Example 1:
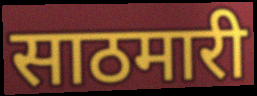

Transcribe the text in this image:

साठमारी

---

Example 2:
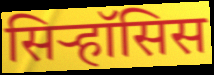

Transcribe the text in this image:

सिऱ्हॉसिस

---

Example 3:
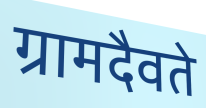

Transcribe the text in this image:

ग्रामदैवते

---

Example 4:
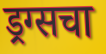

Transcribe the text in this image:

ड्रग्सचा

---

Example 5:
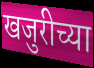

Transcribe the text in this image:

खजुरीच्या